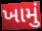
ખામું